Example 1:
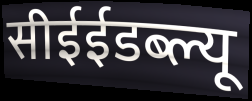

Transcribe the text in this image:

सीईईडब्ल्यू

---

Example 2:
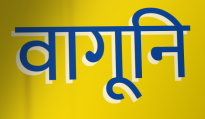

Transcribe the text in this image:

वागूनि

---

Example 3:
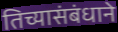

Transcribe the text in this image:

तिच्यासंबंधाने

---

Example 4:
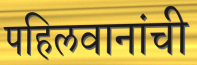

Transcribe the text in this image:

पहिलवानांची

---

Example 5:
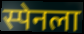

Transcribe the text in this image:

स्पेनला